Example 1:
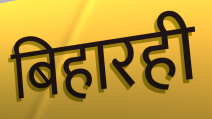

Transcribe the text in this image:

बिहारही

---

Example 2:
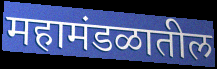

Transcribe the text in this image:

महामंडळातील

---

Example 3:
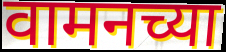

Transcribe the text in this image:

वामनच्या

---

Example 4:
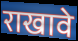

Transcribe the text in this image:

राखावे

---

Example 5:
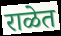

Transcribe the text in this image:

राळेत